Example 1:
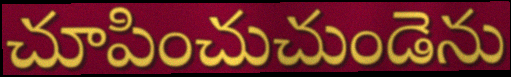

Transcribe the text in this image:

చూపించుచుండెను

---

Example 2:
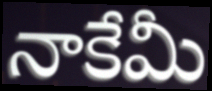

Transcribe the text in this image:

నాకేమీ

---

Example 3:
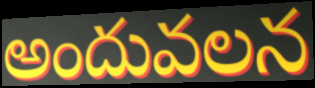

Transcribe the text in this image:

అందువలన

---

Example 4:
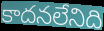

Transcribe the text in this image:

కాదనలేనిది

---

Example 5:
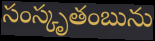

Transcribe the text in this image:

సంస్కృతంబును